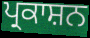
ਪ੍ਰਕਾਸ਼ਨ